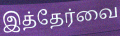
இத்தேர்வை